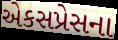
એકસપ્રેસના